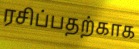
ரசிப்பதற்காக